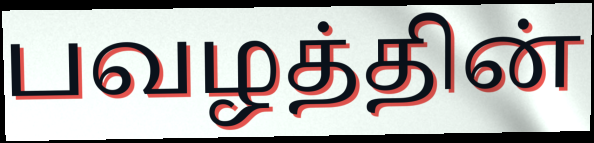
பவழத்தின்